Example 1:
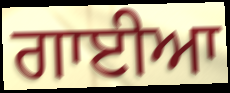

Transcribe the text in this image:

ਗਾਈਆ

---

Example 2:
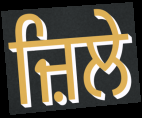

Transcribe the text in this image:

ਜ਼ਿਲੇ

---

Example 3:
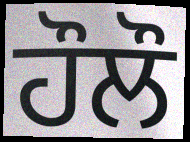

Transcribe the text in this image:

ਹੌਲੌ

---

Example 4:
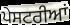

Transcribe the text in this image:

ਪੇਸਟਰੀਆਂ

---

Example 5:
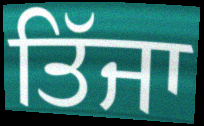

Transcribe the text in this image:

ਤਿੱਜਾ